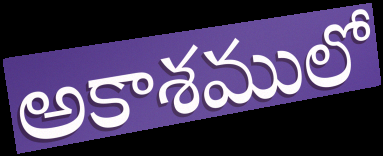
అకాశములో